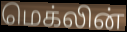
மெக்லின்